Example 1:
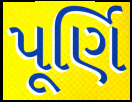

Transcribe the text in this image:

પૂર્ણિ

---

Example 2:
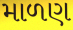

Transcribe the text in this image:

માળણ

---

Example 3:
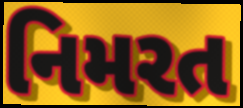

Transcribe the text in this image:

નિમરત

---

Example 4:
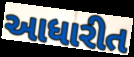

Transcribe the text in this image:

આધારીત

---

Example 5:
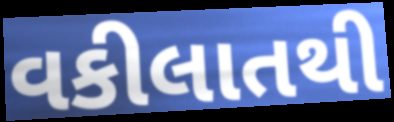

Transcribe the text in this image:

વકીલાતથી